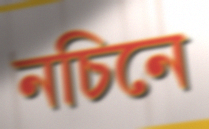
নচিনে